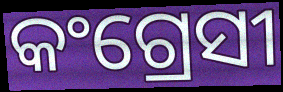
କଂଗ୍ରେସୀ